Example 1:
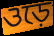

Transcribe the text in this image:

ওড়ে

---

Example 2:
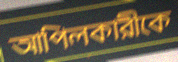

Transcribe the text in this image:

আপিলকারীকে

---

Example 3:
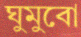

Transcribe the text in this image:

ঘুমুবো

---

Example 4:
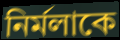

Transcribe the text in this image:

নির্মলাকে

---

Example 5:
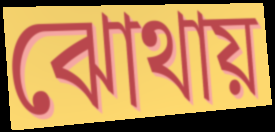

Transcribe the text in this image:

ঝোথায়